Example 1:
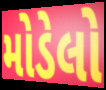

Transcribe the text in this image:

મોડેલો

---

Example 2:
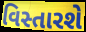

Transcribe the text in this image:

વિસ્તારશે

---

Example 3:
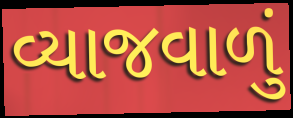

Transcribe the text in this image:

વ્યાજવાળું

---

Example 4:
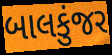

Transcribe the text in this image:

બાલકુંજર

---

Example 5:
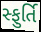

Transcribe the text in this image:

સ્ફુર્તિ